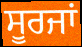
ਸੂਰਜਾਂ